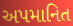
અપમાનિત